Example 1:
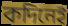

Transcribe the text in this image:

কদিনেই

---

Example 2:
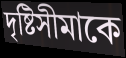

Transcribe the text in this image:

দৃষ্টিসীমাকে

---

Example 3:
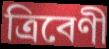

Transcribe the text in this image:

ত্রিবেণী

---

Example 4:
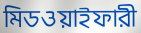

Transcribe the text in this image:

মিডওয়াইফারী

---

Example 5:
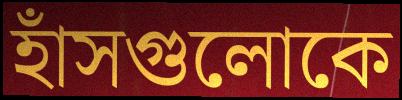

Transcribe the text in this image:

হাঁসগুলোকে